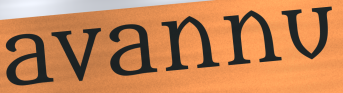
avannu